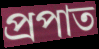
প্রপাত